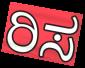
ರಿಸ